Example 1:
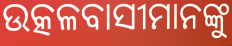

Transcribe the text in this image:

ଉତ୍କଳବାସୀମାନଙ୍କୁ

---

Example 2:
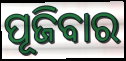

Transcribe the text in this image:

ପୂଜିବାର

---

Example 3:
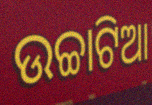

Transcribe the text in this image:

ଉଚ୍ଚାଟିଆ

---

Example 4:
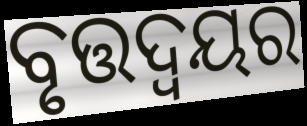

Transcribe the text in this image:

ବୃତ୍ତଦ୍ଵୟର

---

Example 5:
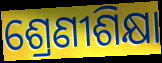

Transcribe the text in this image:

ଶ୍ରେଣୀଶିକ୍ଷା